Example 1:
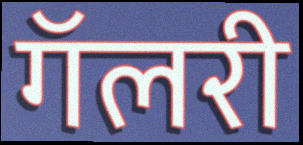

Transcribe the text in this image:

गॅलरी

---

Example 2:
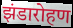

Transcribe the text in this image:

झंडारोहण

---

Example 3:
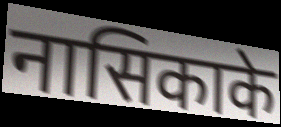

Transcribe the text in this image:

नासिकाके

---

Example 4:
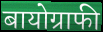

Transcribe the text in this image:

बायोग्राफी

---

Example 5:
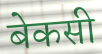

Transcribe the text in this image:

बेकसी